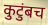
कुटुंबच